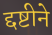
द्दष्टीने